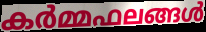
കർമ്മഫലങ്ങൾ